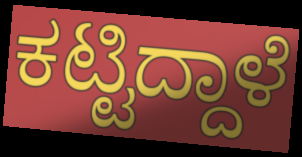
ಕಟ್ಟಿದ್ದಾಳೆ